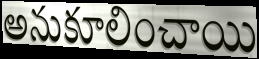
అనుకూలించాయి